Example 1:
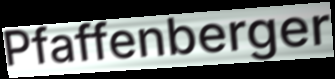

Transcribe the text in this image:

Pfaffenberger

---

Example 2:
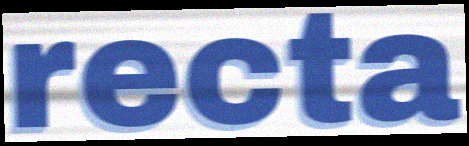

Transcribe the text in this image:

recta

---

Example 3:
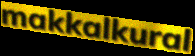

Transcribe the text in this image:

makkalkural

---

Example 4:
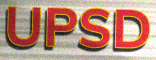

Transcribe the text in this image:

UPSD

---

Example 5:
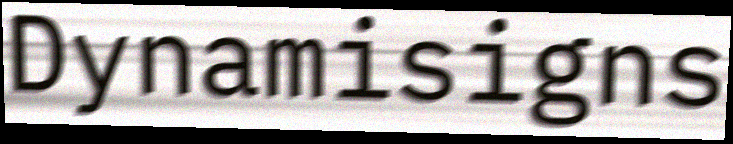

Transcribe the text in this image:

Dynamisigns